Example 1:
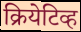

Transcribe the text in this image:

क्रियेटिव्ह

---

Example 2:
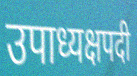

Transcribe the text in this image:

उपाध्यक्षपदी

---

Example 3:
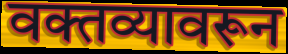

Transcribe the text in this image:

वक्तव्यावरून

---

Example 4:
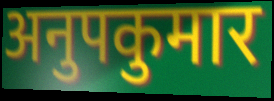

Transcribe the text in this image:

अनुपकुमार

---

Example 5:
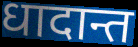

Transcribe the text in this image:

धादान्त